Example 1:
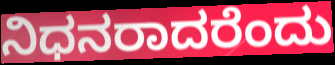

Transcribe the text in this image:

ನಿಧನರಾದರೆಂದು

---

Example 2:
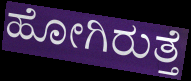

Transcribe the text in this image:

ಹೋಗಿರುತ್ತೆ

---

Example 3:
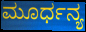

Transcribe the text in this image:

ಮೂರ್ಧನ್ಯ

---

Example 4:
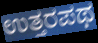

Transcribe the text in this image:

ಉತ್ತರಪಥ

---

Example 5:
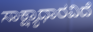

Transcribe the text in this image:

ಸಾಕ್ಷ್ಯಾಧಾರವಿದೆ